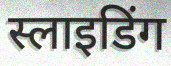
स्लाइडिंग